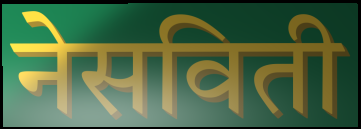
नेसविती